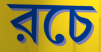
রচে